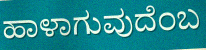
ಹಾಳಾಗುವುದೆಂಬ